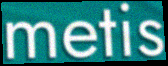
metis